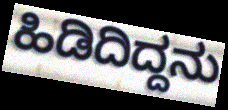
ಹಿಡಿದಿದ್ದನು